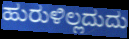
ಹುರುಳಿಲ್ಲದುದು